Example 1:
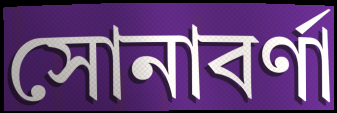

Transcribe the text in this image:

সোনাবর্ণা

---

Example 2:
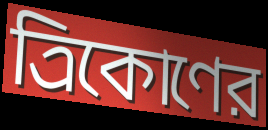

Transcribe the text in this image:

ত্রিকোণের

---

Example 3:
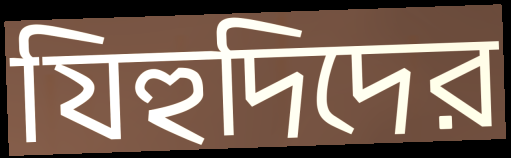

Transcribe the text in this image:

যিহুদিদের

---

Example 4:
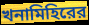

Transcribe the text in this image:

খনামিহিরের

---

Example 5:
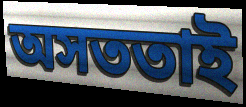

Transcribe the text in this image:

অসততাই